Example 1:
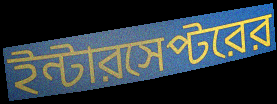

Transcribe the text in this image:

ইন্টারসেপ্টরের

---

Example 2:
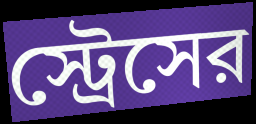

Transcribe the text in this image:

স্ট্রেসের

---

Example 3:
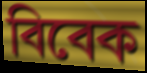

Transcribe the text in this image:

বিবেক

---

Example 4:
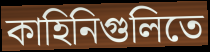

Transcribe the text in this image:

কাহিনিগুলিতে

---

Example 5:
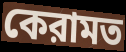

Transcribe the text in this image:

কেরামত